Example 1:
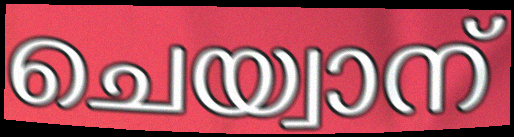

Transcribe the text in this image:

ചെയ്വാന്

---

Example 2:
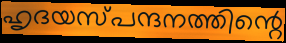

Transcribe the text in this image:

ഹൃദയസ്പന്ദനത്തിന്റെ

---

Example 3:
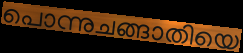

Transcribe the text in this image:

പൊന്നുചങ്ങാതിയെ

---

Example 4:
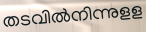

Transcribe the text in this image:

തടവിൽനിന്നുളള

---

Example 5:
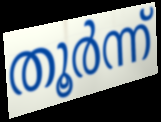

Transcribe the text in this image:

തൂർന്ന്